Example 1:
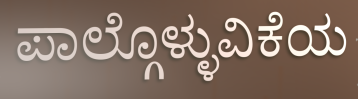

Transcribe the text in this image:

ಪಾಲ್ಗೊಳ್ಳುವಿಕೆಯ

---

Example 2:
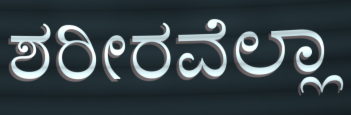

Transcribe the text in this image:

ಶರೀರವೆಲ್ಲಾ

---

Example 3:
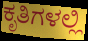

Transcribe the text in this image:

ಕೃತಿಗಳಲ್ಲಿ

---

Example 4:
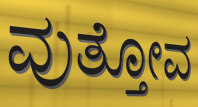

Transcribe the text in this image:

ವುತ್ತೋವ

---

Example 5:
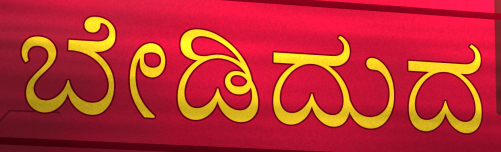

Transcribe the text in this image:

ಬೇಡಿದುದ